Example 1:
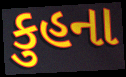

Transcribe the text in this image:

કુહના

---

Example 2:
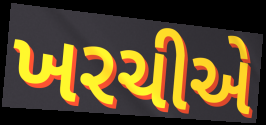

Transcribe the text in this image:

ખરચીએ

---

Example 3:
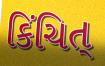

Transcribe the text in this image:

કિંચિત્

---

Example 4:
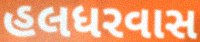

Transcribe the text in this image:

હલધરવાસ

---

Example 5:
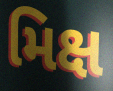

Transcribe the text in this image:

મિક્ષ